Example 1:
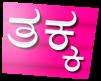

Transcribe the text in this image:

ತಕ್ಕ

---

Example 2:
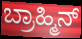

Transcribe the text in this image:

ಬ್ರಾಹ್ಮಿನ್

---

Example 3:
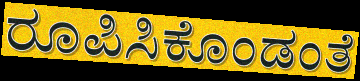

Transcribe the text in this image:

ರೂಪಿಸಿಕೊಂಡಂತೆ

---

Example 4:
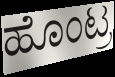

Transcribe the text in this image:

ಹೊಂಟ್ರ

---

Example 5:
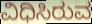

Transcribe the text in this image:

ವಿಧಿಸಿರುವ